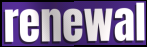
renewal